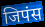
जिपंस